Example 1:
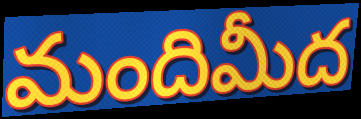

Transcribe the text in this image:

మందిమీద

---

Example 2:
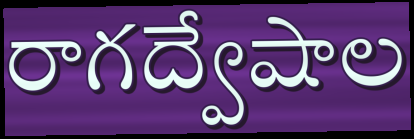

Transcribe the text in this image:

రాగద్వేషాల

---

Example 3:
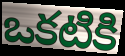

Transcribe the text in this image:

ఒకటికి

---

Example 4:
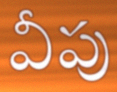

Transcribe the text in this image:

వీపు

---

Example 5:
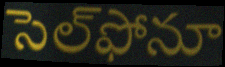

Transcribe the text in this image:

సెల్‌ఫోనూ